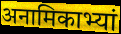
अनामिकाभ्यां